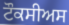
ਟੌਕਸੀਅਸ